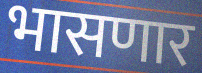
भासणार